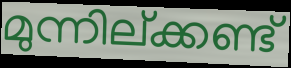
മുന്നില്ക്കണ്ട്